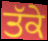
ਤੱਕੇ